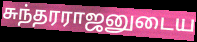
சுந்தரராஜனுடைய